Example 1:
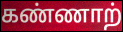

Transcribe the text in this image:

கண்ணாற்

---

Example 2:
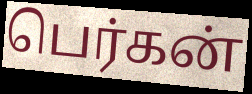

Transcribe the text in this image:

பெர்கன்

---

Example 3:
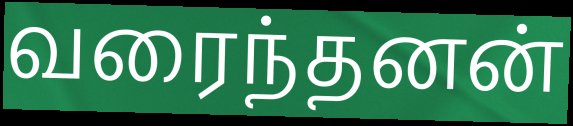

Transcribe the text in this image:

வரைந்தனன்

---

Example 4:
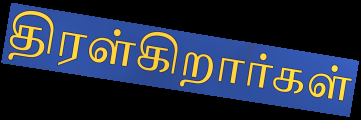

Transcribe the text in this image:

திரள்கிறார்கள்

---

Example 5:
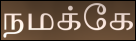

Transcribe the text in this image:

நமக்கே